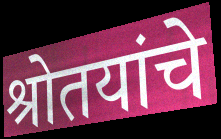
श्रोतयांचे